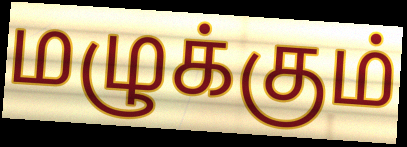
மழுக்கும்